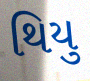
થિયુ